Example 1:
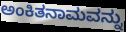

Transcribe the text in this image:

ಅಂಕಿತನಾಮವನ್ನು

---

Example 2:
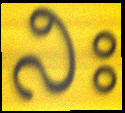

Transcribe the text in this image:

ನಿಃ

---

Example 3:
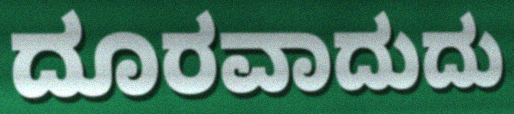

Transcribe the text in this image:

ದೂರವಾದುದು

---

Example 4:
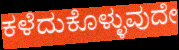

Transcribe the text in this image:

ಕಳೆದುಕೊಳ್ಳುವುದೇ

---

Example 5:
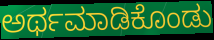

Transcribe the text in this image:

ಅರ್ಥಮಾಡಿಕೊಂಡು